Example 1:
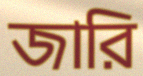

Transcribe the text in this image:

জারি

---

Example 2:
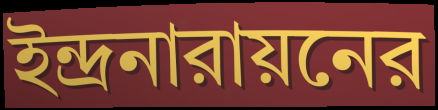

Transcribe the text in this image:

ইন্দ্রনারায়নের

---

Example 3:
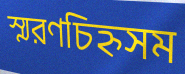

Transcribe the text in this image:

স্মরণচিহ্নসম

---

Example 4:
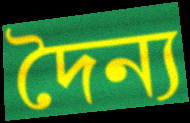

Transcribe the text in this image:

দৈন্য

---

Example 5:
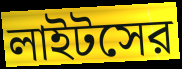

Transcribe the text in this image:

লাইটসের